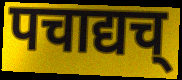
पचाद्यच्